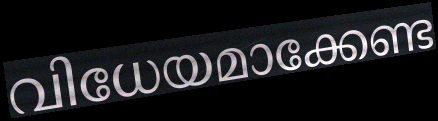
വിധേയമാക്കേണ്ട